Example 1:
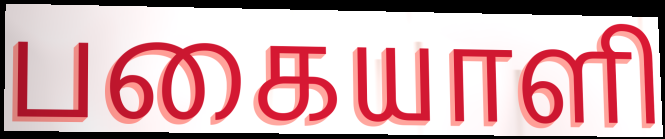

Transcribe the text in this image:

பகையாளி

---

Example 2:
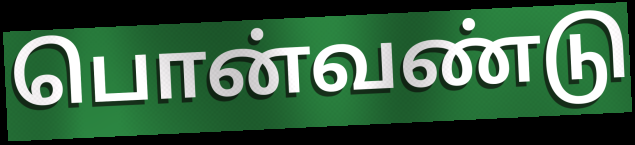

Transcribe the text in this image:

பொன்வண்டு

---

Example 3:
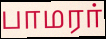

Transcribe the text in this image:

பாமரர்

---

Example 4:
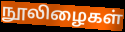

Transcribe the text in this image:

நூலிழைகள்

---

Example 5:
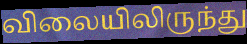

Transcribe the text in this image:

விலையிலிருந்து